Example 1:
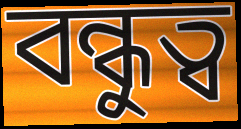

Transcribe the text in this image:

বন্ধুত্ব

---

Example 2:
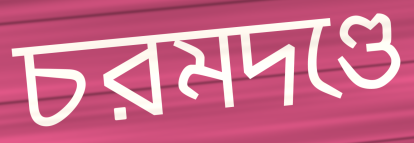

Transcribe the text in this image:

চরমদণ্ডে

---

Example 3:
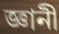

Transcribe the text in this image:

জ্ঞানী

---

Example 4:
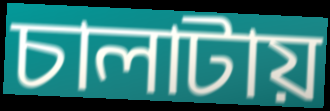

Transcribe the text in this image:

চালাটায়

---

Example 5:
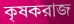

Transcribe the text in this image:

কৃষকরাজ